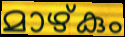
മാഴ്കും